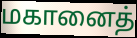
மகானைத்